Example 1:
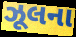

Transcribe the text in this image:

ઝૂલના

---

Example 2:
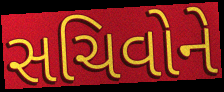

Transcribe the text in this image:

સચિવોને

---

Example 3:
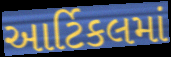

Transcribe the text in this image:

આર્ટિકલમાં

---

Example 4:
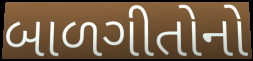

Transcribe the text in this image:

બાળગીતોનો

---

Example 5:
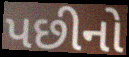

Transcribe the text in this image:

પછીનો